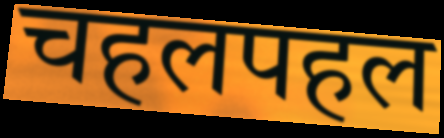
चहलपहल